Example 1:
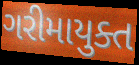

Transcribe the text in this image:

ગરીમાયુક્ત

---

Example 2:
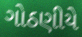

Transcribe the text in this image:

ગોઠણીયે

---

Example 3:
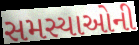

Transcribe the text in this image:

સમસ્યાઓની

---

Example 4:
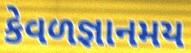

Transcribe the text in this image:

કેવળજ્ઞાનમય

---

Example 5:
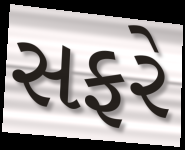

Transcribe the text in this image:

સફરે